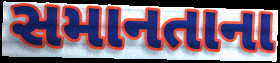
સમાનતાના